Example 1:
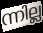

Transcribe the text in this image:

ന്നില്ല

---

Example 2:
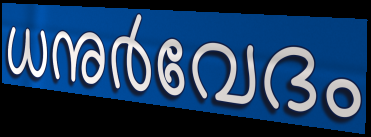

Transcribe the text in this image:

ധനുർവേദം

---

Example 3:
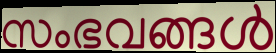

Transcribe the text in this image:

സംഭവങ്ങൾ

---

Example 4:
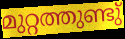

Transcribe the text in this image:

മുറ്റത്തുണ്ടു്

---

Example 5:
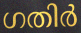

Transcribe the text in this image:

ഗതിർ